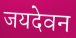
जयदेवन